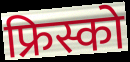
फ्रिस्को